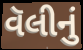
વૅલીનું